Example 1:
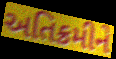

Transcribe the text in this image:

અતિક્રમીને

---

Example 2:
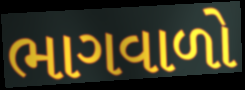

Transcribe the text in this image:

ભાગવાળો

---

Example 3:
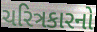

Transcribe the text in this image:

ચરિત્રકારનો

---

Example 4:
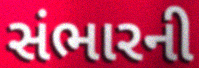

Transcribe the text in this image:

સંભારની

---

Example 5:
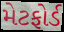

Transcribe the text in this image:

મેટફોર્ડ